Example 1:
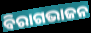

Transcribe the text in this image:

ବିରାଗଭାଜନ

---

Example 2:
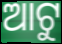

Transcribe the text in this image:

ଆଟୁ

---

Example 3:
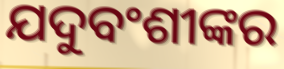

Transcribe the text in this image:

ଯଦୁବଂଶୀଙ୍କର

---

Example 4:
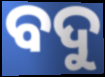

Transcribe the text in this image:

ବଦୁ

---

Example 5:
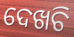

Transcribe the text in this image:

ଦେଖଚି